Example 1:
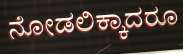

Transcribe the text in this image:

ನೋಡಲಿಕ್ಕಾದರೂ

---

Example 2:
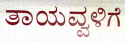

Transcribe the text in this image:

ತಾಯವ್ವಳಿಗೆ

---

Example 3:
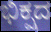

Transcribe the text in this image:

ಭಿಕ್ಷದ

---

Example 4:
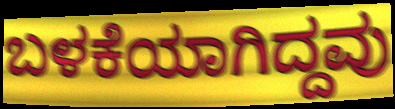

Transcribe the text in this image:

ಬಳಕೆಯಾಗಿದ್ದವು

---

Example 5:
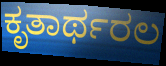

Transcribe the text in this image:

ಕೃತಾರ್ಥರಲ